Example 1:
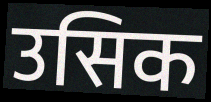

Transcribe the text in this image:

उसिक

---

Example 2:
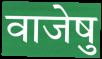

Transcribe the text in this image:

वाजेषु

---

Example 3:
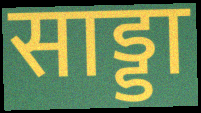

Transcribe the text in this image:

साड्डा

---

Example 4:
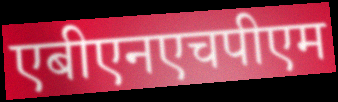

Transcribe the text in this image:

एबीएनएचपीएम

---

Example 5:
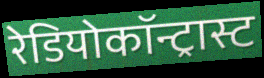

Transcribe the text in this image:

रेडियोकॉन्ट्रास्ट